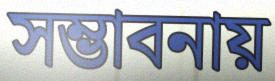
সম্ভাবনায়